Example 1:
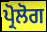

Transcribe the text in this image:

ਪ੍ਰੋਲੋਗ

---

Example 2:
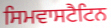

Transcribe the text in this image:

ਸਿਮਵਾਸਟੈਟਿਨ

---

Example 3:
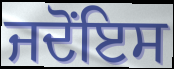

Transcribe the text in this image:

ਜਦੋਂਇਸ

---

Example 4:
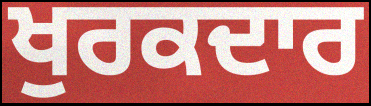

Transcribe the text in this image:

ਖੁਰਕਦਾਰ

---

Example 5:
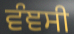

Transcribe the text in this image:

ਵੰਞਸੀ